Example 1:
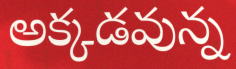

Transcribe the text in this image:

అక్కడవున్న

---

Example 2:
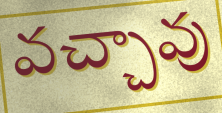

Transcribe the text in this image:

వచ్చావు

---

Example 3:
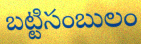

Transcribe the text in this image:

బట్టిసంబులం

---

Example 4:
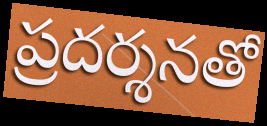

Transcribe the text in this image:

ప్రదర్శనతో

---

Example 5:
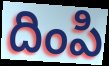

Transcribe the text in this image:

దింపి